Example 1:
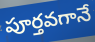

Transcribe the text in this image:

పూర్తవగానే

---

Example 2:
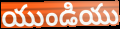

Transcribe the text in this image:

యుండియు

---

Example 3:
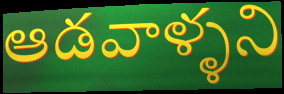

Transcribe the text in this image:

ఆడవాళ్ళని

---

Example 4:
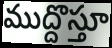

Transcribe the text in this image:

ముద్దొస్తూ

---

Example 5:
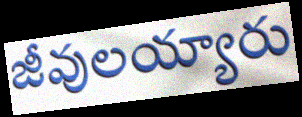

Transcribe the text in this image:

జీవులయ్యారు